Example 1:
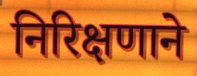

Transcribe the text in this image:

निरिक्षणाने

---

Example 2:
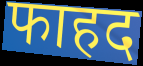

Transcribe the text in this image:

फाहद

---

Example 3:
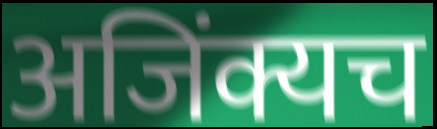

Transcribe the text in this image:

अजिंक्यच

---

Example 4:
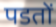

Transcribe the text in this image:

पडतों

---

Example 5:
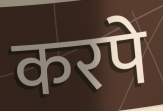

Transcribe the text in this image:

करपे